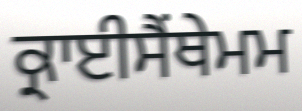
ਕ੍ਰਾਈਸੈਂਥੇਮਮ